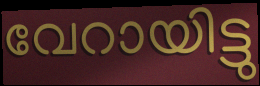
വേറായിട്ടു